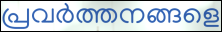
പ്രവർത്തനങ്ങളെ